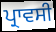
ਪ੍ਰਾਵਸੀ